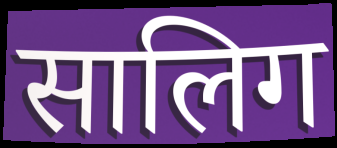
सालिग